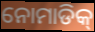
ନୋମାଡିକ୍